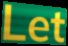
Let